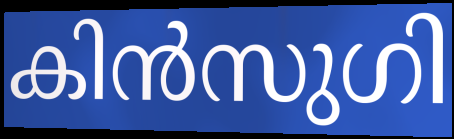
കിൻസുഗി